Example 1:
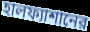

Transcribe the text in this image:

হালফ্যাশানের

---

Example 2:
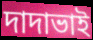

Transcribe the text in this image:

দাদাভাই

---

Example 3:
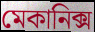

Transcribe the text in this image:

মেকানিক্স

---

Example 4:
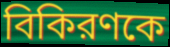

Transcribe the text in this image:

বিকিরণকে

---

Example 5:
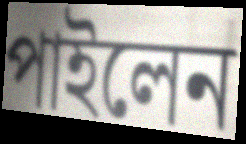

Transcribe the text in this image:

পাইলেন